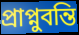
প্রাপ্নুবন্তি